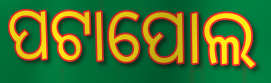
ପଟାପୋଲ